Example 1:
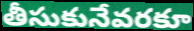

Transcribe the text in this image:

తీసుకునేవరకూ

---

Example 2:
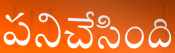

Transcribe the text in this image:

పనిచేసింది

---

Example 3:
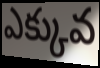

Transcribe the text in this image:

ఎక్కువ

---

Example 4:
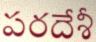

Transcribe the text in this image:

పరదేశీ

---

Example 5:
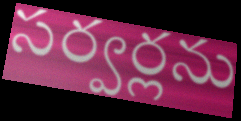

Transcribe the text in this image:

సర్వర్లను